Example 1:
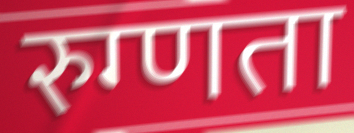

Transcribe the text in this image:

रुग्णता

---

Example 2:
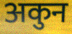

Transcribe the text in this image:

अकुन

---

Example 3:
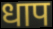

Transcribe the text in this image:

धाप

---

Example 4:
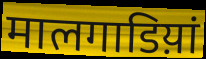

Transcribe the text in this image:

मालगाडिय़ां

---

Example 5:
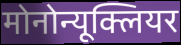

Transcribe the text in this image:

मोनोन्यूक्लियर